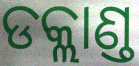
ଡକ୍ଲାଣ୍ଡ